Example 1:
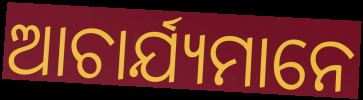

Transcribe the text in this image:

ଆଚାର୍ଯ୍ୟମାନେ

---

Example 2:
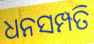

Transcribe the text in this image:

ଧନସମ୍ପତି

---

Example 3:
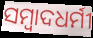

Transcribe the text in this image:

ସମ୍ବାଦଧର୍ମୀ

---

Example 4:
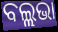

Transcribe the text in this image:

ବଲ୍ଲଭା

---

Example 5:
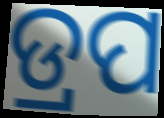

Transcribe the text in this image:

ଡ୍ରପ